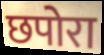
छपोरा